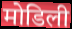
मोडिली